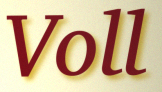
Voll